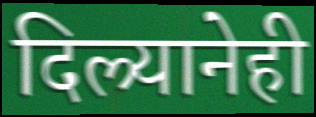
दिल्यानेही